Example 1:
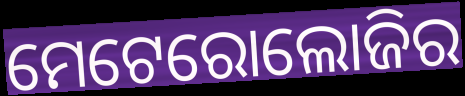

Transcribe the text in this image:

ମେଟେରୋଲୋଜିର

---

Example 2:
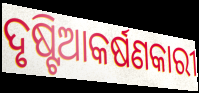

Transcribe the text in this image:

ଦୃଷ୍ଟିଆକର୍ଷଣକାରୀ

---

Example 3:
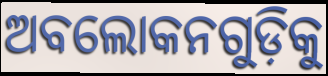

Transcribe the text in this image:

ଅବଲୋକନଗୁଡ଼ିକୁ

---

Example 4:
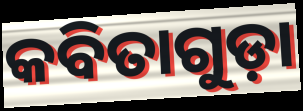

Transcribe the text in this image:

କବିତାଗୁଡ଼ା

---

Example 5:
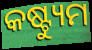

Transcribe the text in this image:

କଷ୍ଟ୍ୟୁମ